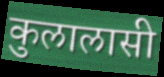
कुलालासी